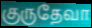
குருதேவா